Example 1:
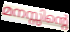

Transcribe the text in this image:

മനസ്സിന്റെ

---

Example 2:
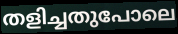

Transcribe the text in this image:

തളിച്ചതുപോലെ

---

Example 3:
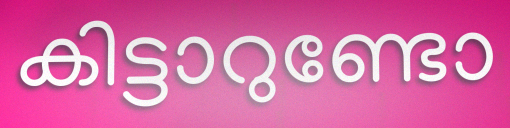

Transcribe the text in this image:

കിട്ടാറുണ്ടോ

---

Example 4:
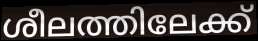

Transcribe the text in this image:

ശീലത്തിലേക്ക്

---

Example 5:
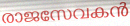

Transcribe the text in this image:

രാജസേവകൻ